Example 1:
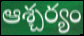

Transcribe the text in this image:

ఆశ్చర్యం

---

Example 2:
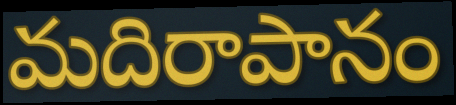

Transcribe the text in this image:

మదిరాపానం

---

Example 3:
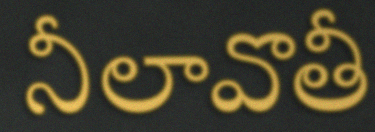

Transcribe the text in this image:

నీలావొతీ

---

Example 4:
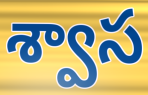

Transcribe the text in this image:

శ్వాస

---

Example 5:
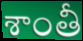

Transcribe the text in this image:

శాంతీ